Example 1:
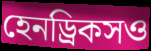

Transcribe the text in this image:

হেনড্রিকসও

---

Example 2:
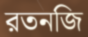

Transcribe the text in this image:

রতনজি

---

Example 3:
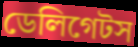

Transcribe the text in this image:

ডেলিগেটস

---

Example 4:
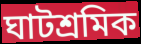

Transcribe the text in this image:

ঘাটশ্রমিক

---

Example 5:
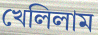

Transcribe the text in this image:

খেলিলাম